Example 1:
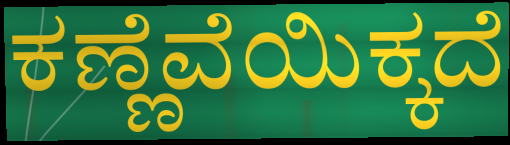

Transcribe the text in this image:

ಕಣ್ಣೆವೆಯಿಕ್ಕದೆ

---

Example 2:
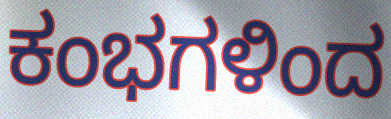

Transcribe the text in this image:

ಕಂಭಗಳಿಂದ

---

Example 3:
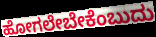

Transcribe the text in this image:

ಹೋಗಲೇಬೇಕೆಂಬುದು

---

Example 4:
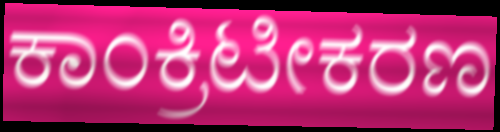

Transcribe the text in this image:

ಕಾಂಕ್ರಿಟೀಕರಣ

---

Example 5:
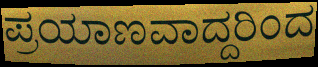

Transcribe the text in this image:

ಪ್ರಯಾಣವಾದ್ದರಿಂದ